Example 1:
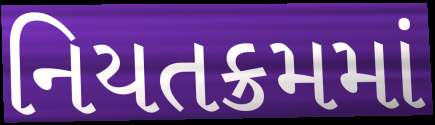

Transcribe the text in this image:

નિયતક્રમમાં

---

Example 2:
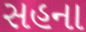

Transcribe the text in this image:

સહના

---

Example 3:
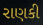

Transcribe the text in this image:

રાણકી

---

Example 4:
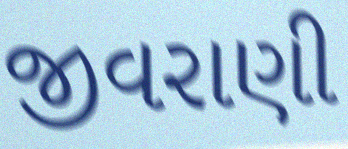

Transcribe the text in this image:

જીવરાણી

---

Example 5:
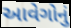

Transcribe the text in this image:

આવેગોનું